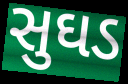
સુઘડ